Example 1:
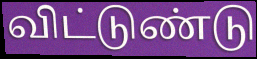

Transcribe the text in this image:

விட்டுண்டு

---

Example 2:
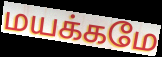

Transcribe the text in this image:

மயக்கமே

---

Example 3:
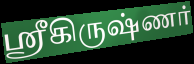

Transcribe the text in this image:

ஶ்ரீகிருஷ்ணர்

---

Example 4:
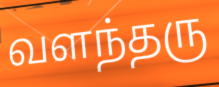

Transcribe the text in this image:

வளந்தரு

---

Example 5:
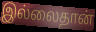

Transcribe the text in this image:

இல்லைதான்